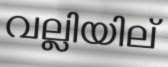
വല്ലിയില്